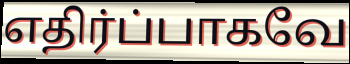
எதிர்ப்பாகவே